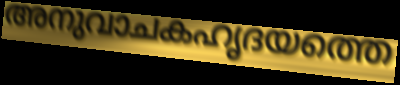
അനുവാചകഹൃദയത്തെ